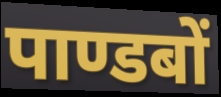
पाण्डबों